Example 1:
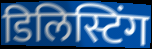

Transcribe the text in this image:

डिलिस्टिंग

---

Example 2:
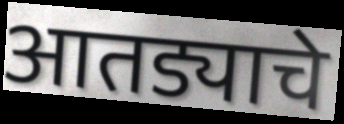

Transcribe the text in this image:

आतड्याचे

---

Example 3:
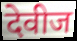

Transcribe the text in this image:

देवीज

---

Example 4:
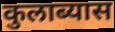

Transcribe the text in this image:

कुलाब्यास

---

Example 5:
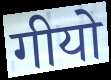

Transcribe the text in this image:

गीयो